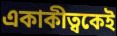
একাকীত্বকেই